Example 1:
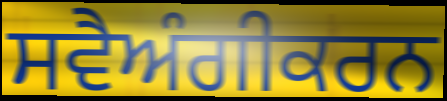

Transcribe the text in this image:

ਸਵੈਅੰਗੀਕਰਨ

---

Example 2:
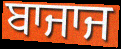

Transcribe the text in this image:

ਬਾਜਾਜ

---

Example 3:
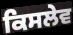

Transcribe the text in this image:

ਕਿਸਲੇਵ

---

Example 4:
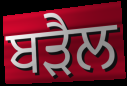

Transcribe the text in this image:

ਬੜੈਲ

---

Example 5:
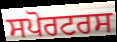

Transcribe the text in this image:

ਸਪੋਰਟਰਸ